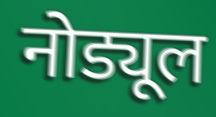
नोड्यूल